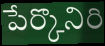
పేర్కొనిరి